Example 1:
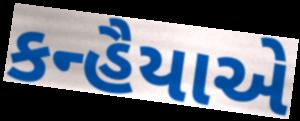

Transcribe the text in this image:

કન્હૈયાએ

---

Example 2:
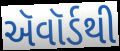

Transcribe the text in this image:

ઍવૉર્ડથી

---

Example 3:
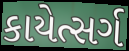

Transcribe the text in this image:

કાયેત્સર્ગ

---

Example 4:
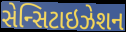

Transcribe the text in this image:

સેન્સિટાઇઝેશન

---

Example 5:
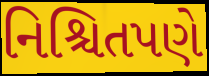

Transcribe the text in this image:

નિશ્ચિતપણે